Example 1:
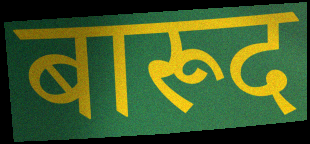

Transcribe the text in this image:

बारूद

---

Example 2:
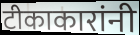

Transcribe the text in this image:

टीकाकारांनी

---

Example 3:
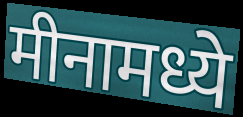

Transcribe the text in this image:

मीनामध्ये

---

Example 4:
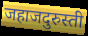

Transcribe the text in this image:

जहाजदुरुस्ती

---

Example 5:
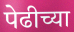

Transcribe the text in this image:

पेढीच्या